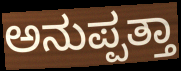
ಅನುಪ್ಪತ್ತಾ